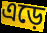
এড়ে